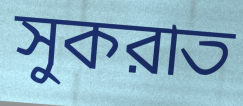
সুকরাত